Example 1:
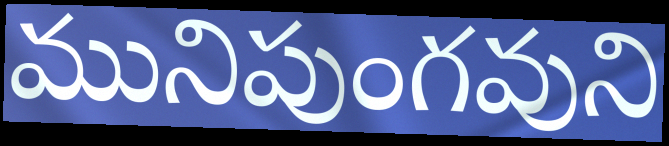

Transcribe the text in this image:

మునిపుంగవుని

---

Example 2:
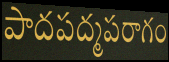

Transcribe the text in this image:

పాదపద్మపరాగం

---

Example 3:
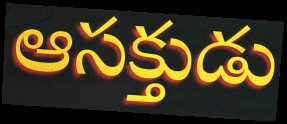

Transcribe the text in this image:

ఆసక్తుడు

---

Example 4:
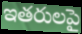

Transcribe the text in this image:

ఇతరులపై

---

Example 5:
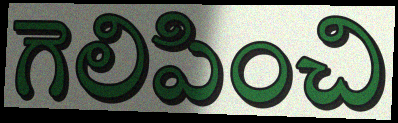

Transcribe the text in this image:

గెలిపించి